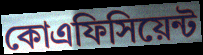
কোএফিসিয়েন্ট